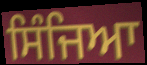
ਸਿੰਜਿਆ